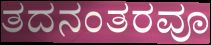
ತದನಂತರವೂ